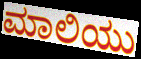
ಮಾಲಿಯು